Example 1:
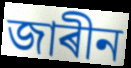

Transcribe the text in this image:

জাৰীন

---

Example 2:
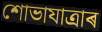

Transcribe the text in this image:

শোভাযাত্ৰাৰ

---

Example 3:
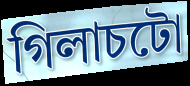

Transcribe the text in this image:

গিলাচটো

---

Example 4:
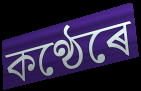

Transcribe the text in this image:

কণ্ঠেৰে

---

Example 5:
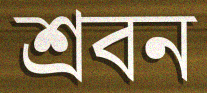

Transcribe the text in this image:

শ্ৰবন